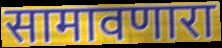
सामावणारा